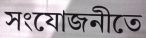
সংযোজনীতে